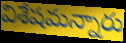
విశేషమన్నారు